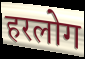
हरलोग